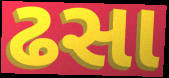
ઢસા